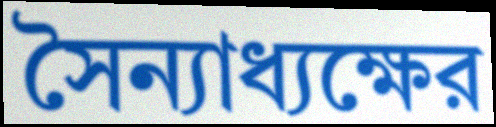
সৈন্যাধ্যক্ষের